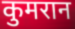
कुमरान